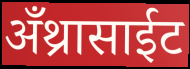
अँथ्रासाईट